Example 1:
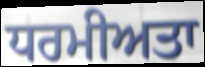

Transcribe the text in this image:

ਧਰਮੀਅਤਾ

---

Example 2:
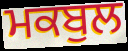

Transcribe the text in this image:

ਮਕਬੁਲ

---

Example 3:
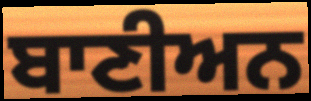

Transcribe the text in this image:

ਬਾਣੀਅਨ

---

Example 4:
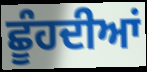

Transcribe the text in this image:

ਛੂੰਹਦੀਆਂ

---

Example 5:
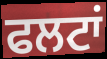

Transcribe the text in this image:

ਫਲਟਾਂ